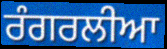
ਰੰਗਰਲੀਆ